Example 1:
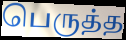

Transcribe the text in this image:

பெருத்த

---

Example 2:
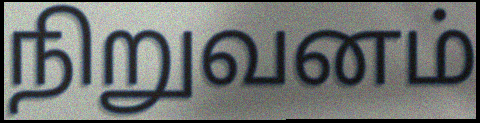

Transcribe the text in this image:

நிறுவனம்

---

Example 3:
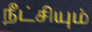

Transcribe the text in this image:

நீட்சியும்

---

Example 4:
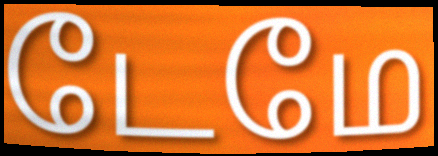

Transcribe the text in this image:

டேமே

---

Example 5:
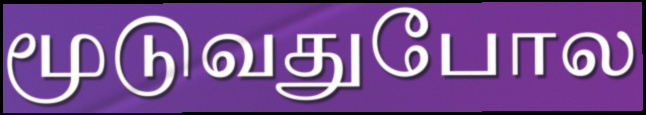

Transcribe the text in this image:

மூடுவதுபோல